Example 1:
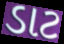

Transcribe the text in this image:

ડાટ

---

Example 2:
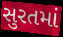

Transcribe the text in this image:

સુરતમાં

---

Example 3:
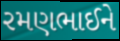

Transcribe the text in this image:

રમણભાઈને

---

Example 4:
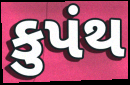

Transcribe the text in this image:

કુપંથ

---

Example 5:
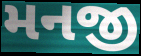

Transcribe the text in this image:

મનજી